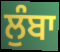
ਲੁੰਬਾ